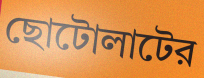
ছোটোলাটের